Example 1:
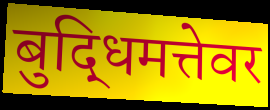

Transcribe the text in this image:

बुद्धिमत्तेवर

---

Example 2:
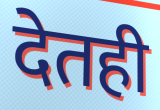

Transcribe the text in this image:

देतही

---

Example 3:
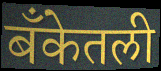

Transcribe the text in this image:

बँकेतली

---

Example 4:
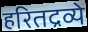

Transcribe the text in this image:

हरितद्रव्ये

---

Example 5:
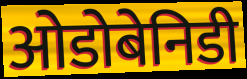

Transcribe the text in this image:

ओडोबेनिडी